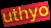
uthyo